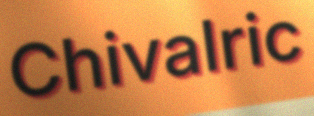
Chivalric